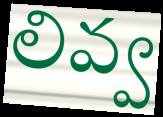
లివ్వ